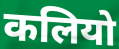
कलियो